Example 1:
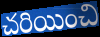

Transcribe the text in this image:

చరియించి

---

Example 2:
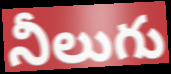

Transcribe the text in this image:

నీలుగు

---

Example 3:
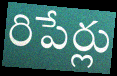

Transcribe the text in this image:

రిపేర్లు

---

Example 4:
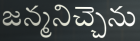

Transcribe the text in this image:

జన్మనిచ్చెను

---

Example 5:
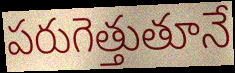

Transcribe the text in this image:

పరుగెత్తుతూనే